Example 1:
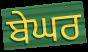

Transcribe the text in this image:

ਬੇਘਰ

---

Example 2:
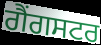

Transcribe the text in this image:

ਗੈਂਗਸਟਰ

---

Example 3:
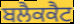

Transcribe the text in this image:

ਬਲੈਕਕੈਟ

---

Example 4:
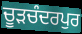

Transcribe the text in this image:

ਚੂੜਚੰਦਰਪੁਰ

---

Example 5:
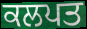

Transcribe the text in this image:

ਕਲਪਤ